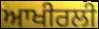
ਆਖੀਰਲੀ